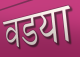
वडया